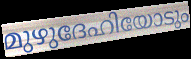
മുഴുദേഹിയോടും